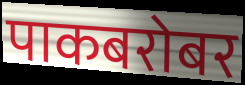
पाकबरोबर